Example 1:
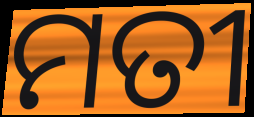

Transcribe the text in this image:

ମତୀ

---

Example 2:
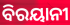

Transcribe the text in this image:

ବିରୟାନୀ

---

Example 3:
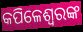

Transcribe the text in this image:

କପିଳେଶ୍ବରଙ୍କ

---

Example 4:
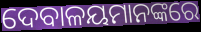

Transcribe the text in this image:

ଦେବାଳୟମାନଙ୍କରେ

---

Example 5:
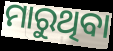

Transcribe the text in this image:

ମାରୁଥିବା